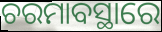
ଚରମାବସ୍ଥାରେ